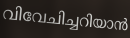
വിവേചിച്ചറിയാൻ